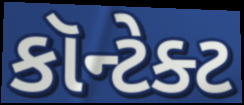
કૉન્ટેક્ટ